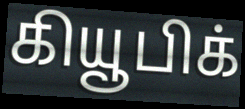
கியூபிக்